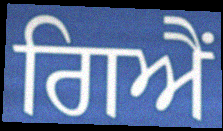
ਗਿਐਂ